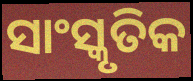
ସାଂସ୍କୃତିକ